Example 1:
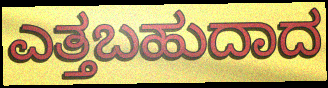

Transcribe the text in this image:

ಎತ್ತಬಹುದಾದ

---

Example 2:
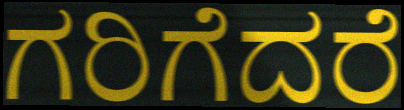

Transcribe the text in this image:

ಗರಿಗೆದರೆ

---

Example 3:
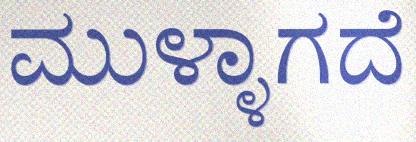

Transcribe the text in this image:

ಮುಳ್ಳಾಗದೆ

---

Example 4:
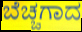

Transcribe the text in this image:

ಬೆಚ್ಚಗಾದ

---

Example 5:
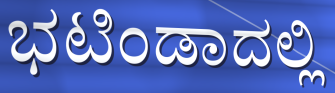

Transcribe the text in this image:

ಭಟಿಂಡಾದಲ್ಲಿ